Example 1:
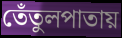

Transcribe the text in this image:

তেঁতুলপাতায়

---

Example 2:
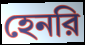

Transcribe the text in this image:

হেনরি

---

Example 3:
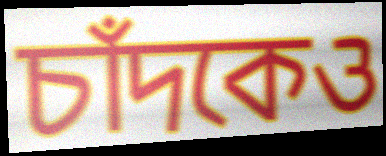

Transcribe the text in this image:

চাঁদকেও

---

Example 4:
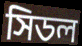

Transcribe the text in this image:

সিডল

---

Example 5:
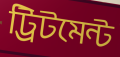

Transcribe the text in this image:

ট্রিটমেন্ট